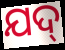
ଯଦ୍